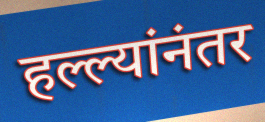
हल्ल्यांनंतर